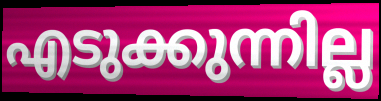
എടുക്കുന്നില്ല